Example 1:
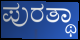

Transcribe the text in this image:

ಪುರತ್ಥಾ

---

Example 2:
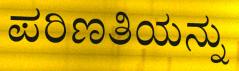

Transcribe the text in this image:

ಪರಿಣತಿಯನ್ನು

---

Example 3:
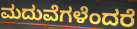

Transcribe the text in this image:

ಮದುವೆಗಳೆಂದರೆ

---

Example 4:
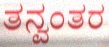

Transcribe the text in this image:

ತನ್ವಂತರ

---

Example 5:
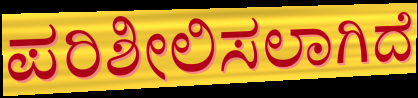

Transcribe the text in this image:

ಪರಿಶೀಲಿಸಲಾಗಿದೆ